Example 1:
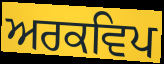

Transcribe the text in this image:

ਅਰਕਵਿਪ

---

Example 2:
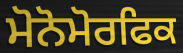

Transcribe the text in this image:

ਮੋਨੋਮੋਰਫਿਕ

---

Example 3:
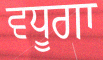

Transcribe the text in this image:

ਵਧੂਗਾ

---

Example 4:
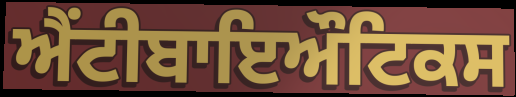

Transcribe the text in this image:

ਐਂਟੀਬਾਇਔਟਿਕਸ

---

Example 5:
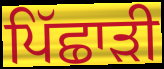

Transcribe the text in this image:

ਪਿੱਛਾੜੀ